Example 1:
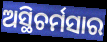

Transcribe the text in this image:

ଅସ୍ଥିଚର୍ମସାର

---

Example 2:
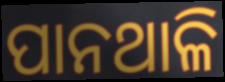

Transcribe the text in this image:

ପାନଥାଳି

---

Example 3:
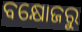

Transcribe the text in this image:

ବକ୍ଷୋଜରୁ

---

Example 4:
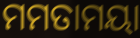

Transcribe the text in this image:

ମମତାମୟା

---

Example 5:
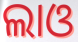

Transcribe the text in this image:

ଲାଓ